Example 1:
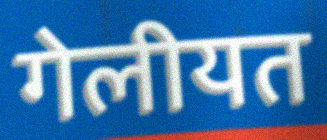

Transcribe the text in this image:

गेलीयत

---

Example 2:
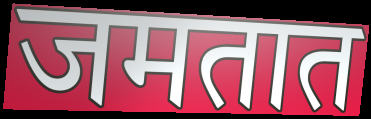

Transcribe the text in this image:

जमतात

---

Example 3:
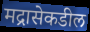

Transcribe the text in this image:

मद्रासेकडील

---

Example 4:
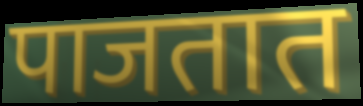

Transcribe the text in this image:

पाजतात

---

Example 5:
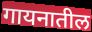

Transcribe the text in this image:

गायनातील